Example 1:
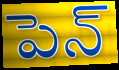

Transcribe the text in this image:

పెన్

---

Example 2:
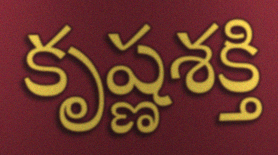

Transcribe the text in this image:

కృష్ణశక్తి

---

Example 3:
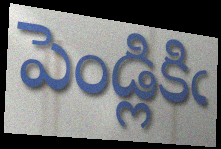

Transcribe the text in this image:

పెండ్లికిఁ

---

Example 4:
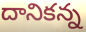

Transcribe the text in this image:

దానికన్న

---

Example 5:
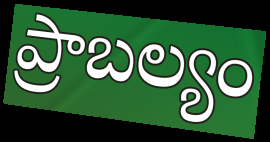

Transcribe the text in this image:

ప్రాబల్యం